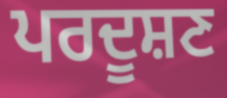
ਪਰਦੂਸ਼ਣ